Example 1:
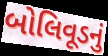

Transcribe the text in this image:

બોલિવૂડનું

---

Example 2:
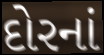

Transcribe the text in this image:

દોરનાં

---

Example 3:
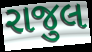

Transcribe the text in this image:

રાજુલ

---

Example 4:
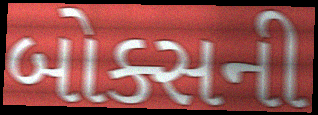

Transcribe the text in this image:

બોક્સની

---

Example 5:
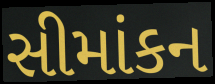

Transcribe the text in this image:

સીમાંકન